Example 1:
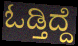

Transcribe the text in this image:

ಓಡ್ತಿದ್ದೆ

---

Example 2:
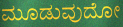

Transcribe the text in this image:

ಮೂಡುವುದೋ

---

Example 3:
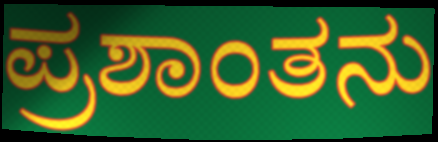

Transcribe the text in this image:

ಪ್ರಶಾಂತನು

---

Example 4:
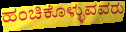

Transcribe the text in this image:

ಹಂಚಿಕೊಳ್ಳುವವರು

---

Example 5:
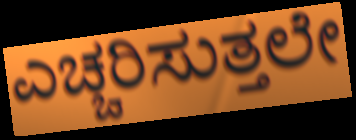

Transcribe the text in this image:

ಎಚ್ಚರಿಸುತ್ತಲೇ